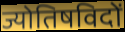
ज्योतिषविदों